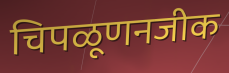
चिपळूणनजीक